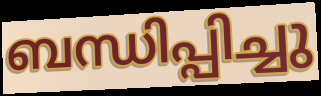
ബന്ധിപ്പിച്ചു